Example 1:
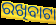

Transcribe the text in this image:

ରଖିବାଟା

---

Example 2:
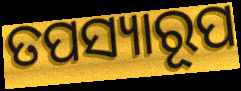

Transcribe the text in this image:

ତପସ୍ୟାରୂପ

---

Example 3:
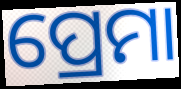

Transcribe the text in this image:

ପ୍ରେମା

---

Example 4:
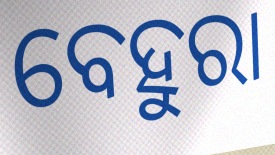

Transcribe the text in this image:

ବେହୁରା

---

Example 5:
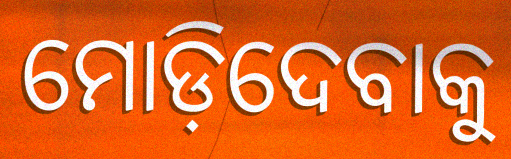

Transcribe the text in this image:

ମୋଡ଼ିଦେବାକୁ